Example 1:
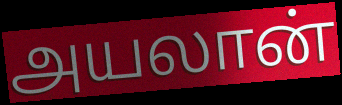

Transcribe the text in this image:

அயலான்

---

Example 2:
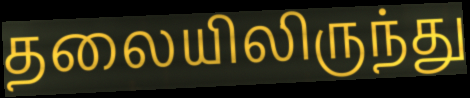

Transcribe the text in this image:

தலையிலிருந்து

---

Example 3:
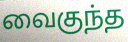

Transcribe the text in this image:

வைகுந்த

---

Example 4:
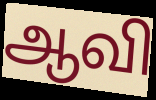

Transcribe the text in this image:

ஆவி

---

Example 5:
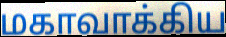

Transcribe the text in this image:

மகாவாக்கிய